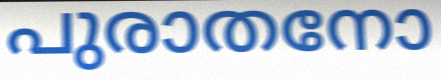
പുരാതനോ